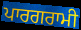
ਪਾਰਗਰਾਮੀ